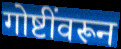
गोष्टींवरून